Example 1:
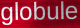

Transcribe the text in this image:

globule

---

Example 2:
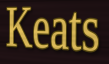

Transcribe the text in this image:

Keats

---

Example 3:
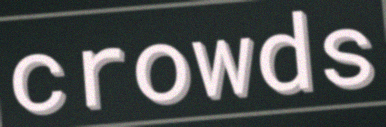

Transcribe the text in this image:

crowds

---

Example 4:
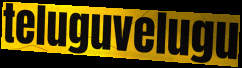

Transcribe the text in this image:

teluguvelugu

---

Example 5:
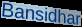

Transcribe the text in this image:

Bansidhar